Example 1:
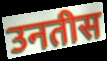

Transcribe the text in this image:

उनतीस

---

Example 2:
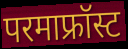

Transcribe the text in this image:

परमाफ्रॉस्ट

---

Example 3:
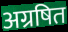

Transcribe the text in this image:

अग्रषित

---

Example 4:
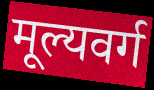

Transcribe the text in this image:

मूल्यवर्ग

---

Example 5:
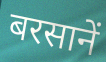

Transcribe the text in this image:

बरसानें